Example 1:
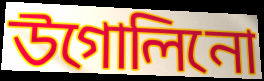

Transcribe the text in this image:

উগোলিনো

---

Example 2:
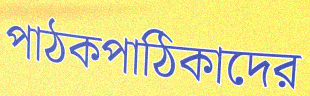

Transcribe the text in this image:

পাঠকপাঠিকাদের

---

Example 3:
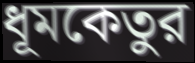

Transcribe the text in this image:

ধূমকেতুর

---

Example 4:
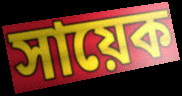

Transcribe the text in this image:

সায়েক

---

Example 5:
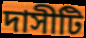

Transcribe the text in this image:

দাসীটি